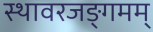
स्थावरजङ्गमम्